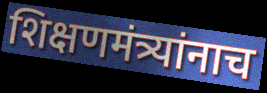
शिक्षणमंत्र्यांनाच